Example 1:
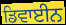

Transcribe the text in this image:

ਡਿਵਾਈਨ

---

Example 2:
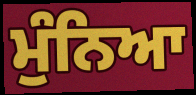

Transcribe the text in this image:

ਮੁੰਨਿਆ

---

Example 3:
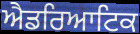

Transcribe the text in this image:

ਐਡਰਿਆਟਿਕ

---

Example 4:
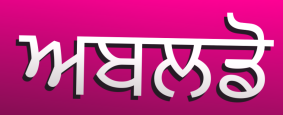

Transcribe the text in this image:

ਅਬਲਡੋ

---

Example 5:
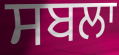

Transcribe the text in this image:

ਸਬਲਾ